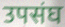
उपसंघ